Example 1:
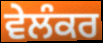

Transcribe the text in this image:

ਵੇਲੰਕਰ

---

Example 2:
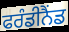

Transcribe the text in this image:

ਫਰੰਡੀਨੈਂਡ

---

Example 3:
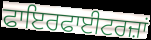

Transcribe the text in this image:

ਫਾਇਰਫਾਈਟਰਜ਼ਾਂ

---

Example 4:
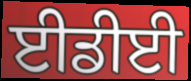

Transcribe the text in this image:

ਈਡੀਈ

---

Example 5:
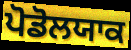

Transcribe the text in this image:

ਪੋਡੋਲਯਾਕ